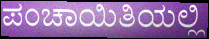
ಪಂಚಾಯಿತಿಯಲ್ಲಿ